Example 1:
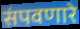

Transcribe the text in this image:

संपवणारे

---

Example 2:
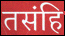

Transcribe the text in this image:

तसंहि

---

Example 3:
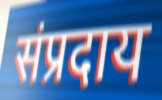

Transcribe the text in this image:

संप्रदाय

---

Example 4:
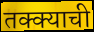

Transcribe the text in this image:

तक्क्याची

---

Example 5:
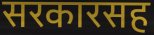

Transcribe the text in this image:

सरकारसह